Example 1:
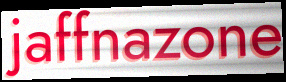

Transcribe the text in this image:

jaffnazone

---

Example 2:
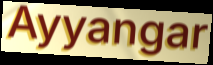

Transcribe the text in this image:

Ayyangar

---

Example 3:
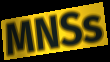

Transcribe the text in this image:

MNSs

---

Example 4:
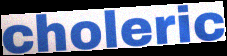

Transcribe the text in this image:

choleric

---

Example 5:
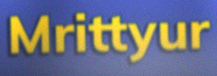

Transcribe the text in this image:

Mrittyur